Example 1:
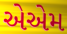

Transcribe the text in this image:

એએમ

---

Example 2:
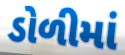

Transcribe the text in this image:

ડોળીમાં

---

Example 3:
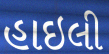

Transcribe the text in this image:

હાઇલી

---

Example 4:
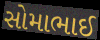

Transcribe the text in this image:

સોમાભાઈ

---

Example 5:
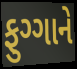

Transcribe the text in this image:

ફુગ્ગાને